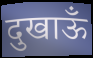
दुखाऊँ